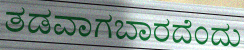
ತಡವಾಗಬಾರದೆಂದು